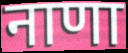
नाणा